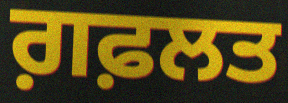
ਗ਼ਫ਼ਲਤ